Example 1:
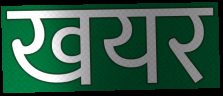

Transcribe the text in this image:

खयर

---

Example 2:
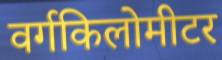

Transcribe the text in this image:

वर्गकिलोमीटर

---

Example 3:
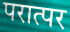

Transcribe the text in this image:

परात्‍पर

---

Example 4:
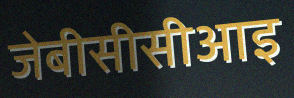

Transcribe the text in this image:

जेबीसीसीआइ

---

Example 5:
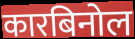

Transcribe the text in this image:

कारबिनोल